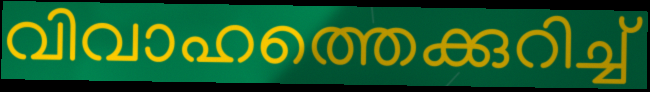
വിവാഹത്തെക്കുറിച്ച്